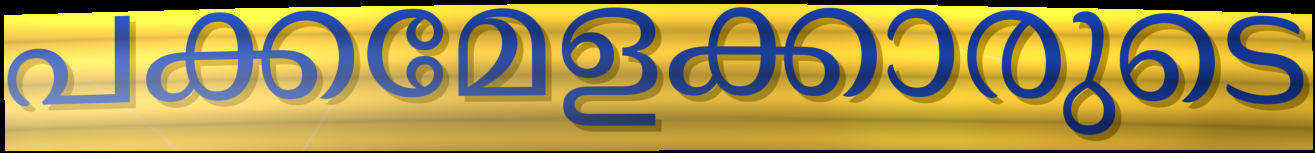
പക്കമേളക്കാരുടെ